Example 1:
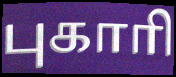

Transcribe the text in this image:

புகாரி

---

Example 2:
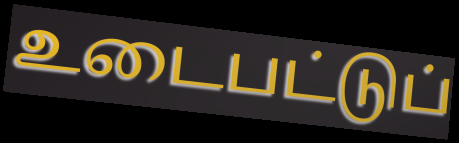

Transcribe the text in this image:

உடைபட்டுப்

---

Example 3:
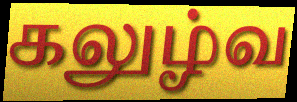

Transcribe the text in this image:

கலுழ்வ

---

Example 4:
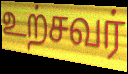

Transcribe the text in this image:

உற்சவர்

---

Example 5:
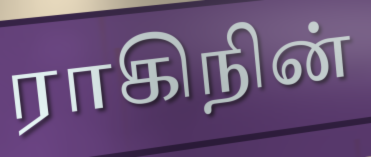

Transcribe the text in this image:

ராகிநின்